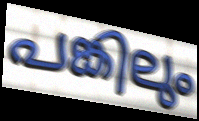
പങ്കിലും